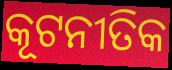
କୂଟନୀତିକ